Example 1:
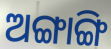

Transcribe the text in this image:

ଅଙ୍ଗାଙ୍ଗି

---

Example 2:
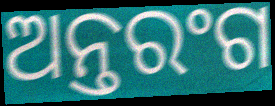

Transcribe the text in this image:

ଅନ୍ତରଂଗ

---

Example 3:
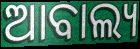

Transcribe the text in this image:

ଆବାଲ୍ୟ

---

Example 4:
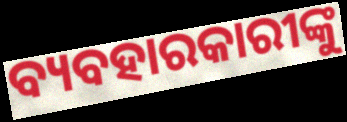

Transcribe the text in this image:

ବ୍ୟବହାରକାରୀଙ୍କୁ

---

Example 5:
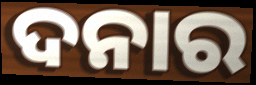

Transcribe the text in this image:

ଦନାର